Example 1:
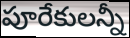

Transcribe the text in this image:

పూరేకులన్నీ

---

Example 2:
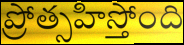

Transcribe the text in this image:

ప్రోత్సహిస్తోంది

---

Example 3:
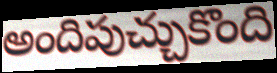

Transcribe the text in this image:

అందిపుచ్చుకొంది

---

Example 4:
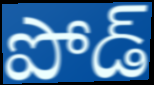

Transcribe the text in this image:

పోడ్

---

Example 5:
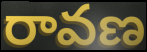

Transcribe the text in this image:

రావణ